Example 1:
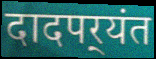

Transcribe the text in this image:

दादपर्यंत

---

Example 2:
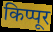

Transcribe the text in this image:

किप्पूर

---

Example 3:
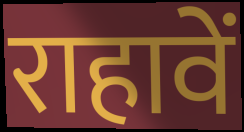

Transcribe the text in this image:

राहावें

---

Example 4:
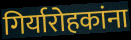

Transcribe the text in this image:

गिर्यारोहकांना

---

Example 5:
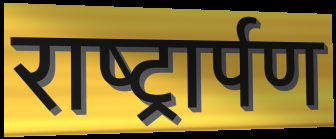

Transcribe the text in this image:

राष्ट्रार्पण